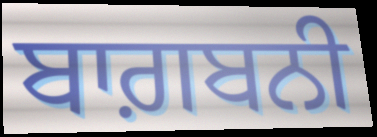
ਬਾਗ਼ਬਨੀ